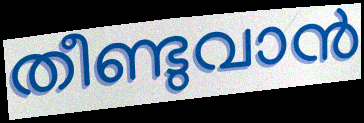
തീണ്ടുവാൻ